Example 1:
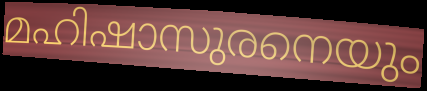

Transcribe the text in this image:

മഹിഷാസുരനെയും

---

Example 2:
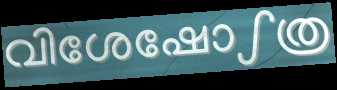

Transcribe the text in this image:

വിശേഷോഽത്ര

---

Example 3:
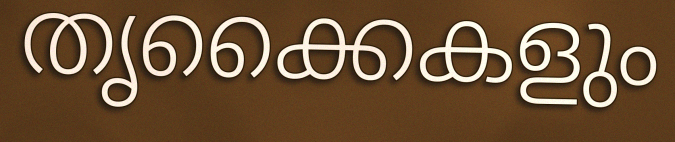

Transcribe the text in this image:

തൃക്കൈകളും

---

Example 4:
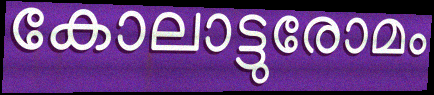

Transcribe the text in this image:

കോലാട്ടുരോമം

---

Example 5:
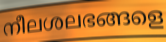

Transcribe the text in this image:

നീലശലഭങ്ങളെ